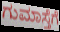
ಗುಮಾಸ್ತೆಗೆ